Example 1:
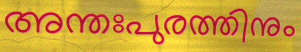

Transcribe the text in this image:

അന്തഃപുരത്തിനും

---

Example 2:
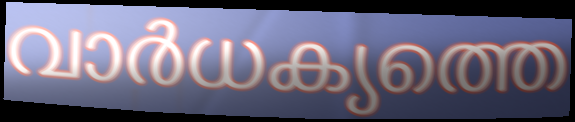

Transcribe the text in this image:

വാർധക്യത്തെ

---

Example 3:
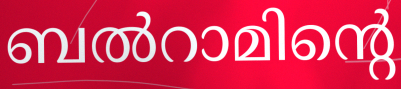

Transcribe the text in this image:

ബൽറാമിന്റെ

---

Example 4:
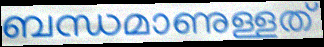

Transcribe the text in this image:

ബന്ധമാണുള്ളത്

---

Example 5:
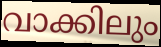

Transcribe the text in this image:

വാക്കിലും